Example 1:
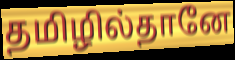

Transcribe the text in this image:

தமிழில்தானே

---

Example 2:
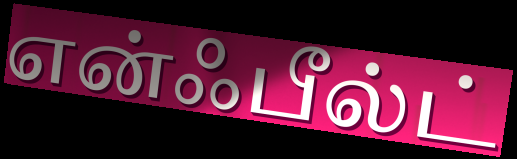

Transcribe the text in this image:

என்ஃபீல்ட்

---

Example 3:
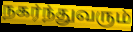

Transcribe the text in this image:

நகர்ந்துவரும்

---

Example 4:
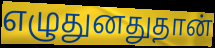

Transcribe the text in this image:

எழுதுனதுதான்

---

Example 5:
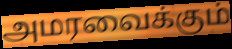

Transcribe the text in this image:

அமரவைக்கும்